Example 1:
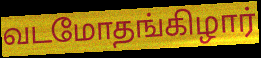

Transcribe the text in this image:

வடமோதங்கிழார்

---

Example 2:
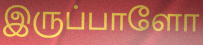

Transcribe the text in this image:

இருப்பாளோ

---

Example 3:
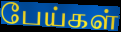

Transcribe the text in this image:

பேய்கள்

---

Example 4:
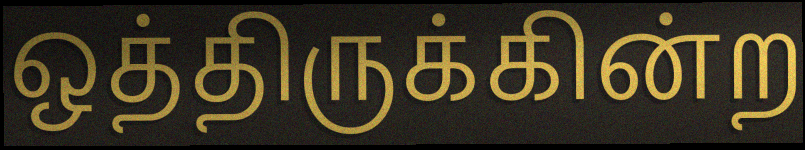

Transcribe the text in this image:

ஒத்திருக்கின்ற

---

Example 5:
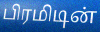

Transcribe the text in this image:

பிரமிடின்